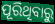
ପୂରିଥିବାରୁ